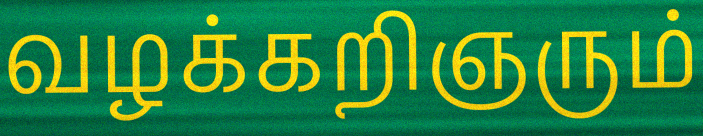
வழக்கறிஞரும்